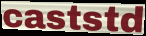
caststd